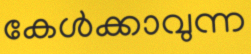
കേൾക്കാവുന്ന